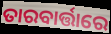
ତାରବାର୍ତ୍ତାରେ